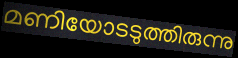
മണിയോടടുത്തിരുന്നു